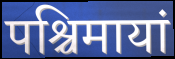
पश्चिमायां